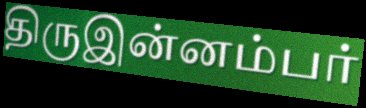
திருஇன்னம்பர்